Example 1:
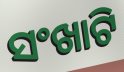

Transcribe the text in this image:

ସଂଖାଟି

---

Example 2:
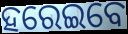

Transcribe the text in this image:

ହରେଇବେ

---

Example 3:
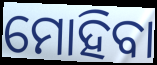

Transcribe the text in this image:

ମୋହିବା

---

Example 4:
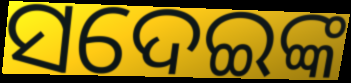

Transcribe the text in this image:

ସଦେଇଙ୍କ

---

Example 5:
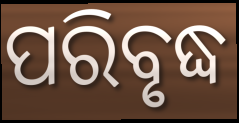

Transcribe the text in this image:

ପରିବୃଦ୍ଧ